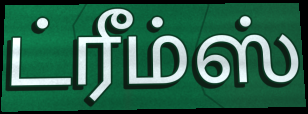
ட்ரீம்ஸ்